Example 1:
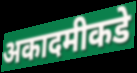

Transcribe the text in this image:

अकादमीकडे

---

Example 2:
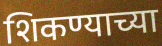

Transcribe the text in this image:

शिकण्याच्या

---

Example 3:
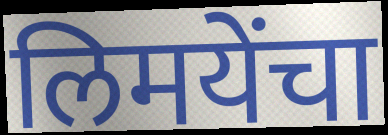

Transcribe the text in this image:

लिमयेंचा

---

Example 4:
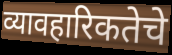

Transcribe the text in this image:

व्यावहारिकतेचे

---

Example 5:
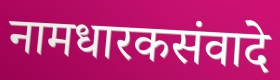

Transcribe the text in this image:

नामधारकसंवादे